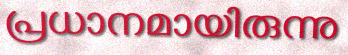
പ്രധാനമായിരുന്നു